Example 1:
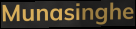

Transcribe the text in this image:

Munasinghe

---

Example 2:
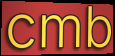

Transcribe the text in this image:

cmb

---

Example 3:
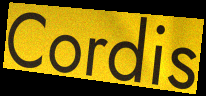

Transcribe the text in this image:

Cordis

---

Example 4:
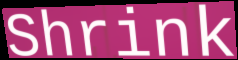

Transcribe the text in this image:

Shrink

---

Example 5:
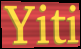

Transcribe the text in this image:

Yiti